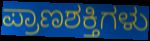
ಪ್ರಾಣಶಕ್ತಿಗಳು